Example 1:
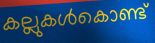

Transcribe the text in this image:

കല്ലുകൾകൊണ്ട്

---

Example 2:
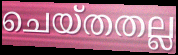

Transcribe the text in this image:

ചെയ്തതല്ല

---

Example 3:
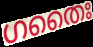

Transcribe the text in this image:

ഗതൈഃ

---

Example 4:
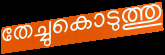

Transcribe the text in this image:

തേച്ചുകൊടുത്തു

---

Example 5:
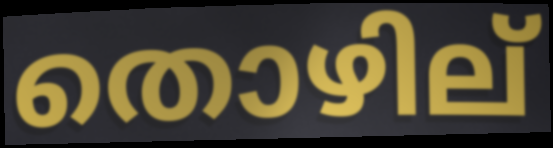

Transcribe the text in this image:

തൊഴില്